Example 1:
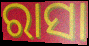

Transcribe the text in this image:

ରାସା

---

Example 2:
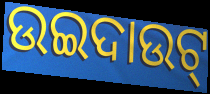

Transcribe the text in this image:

ଉଇଦାଉଟ୍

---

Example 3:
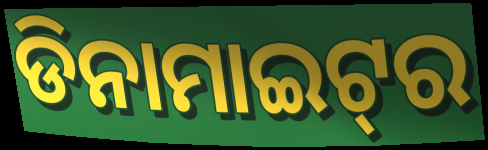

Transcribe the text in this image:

ଡିନାମାଇଟ୍‌ର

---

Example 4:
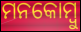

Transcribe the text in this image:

ମନକୋମ୍ବୁ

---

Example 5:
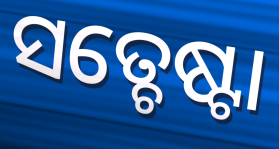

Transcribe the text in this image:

ସତ୍ଚେଷ୍ଟା